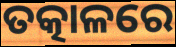
ତତ୍କାଳରେ